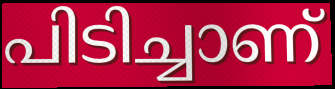
പിടിച്ചാണ്